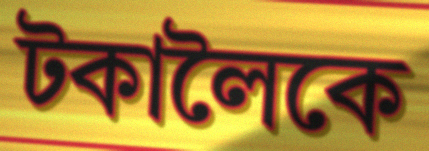
টকালৈকে